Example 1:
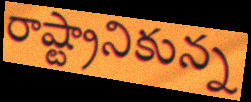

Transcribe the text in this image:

రాష్ట్రానికున్న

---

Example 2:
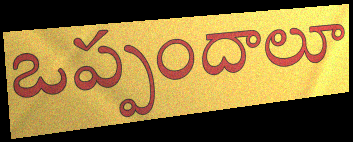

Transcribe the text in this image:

ఒప్పందాలూ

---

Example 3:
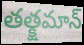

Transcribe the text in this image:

తత్క్షమాన్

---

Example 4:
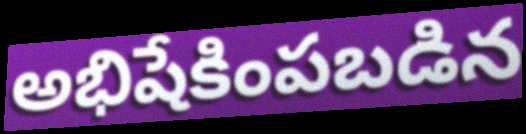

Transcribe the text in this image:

అభిషేకింపబడిన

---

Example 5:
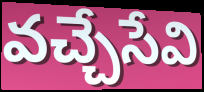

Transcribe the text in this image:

వచ్చేసేవి